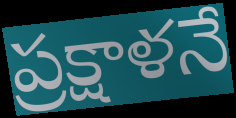
ప్రక్షాళనే